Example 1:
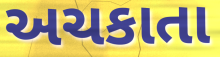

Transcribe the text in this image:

અચકાતા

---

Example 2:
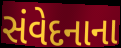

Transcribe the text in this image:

સંવેદનાના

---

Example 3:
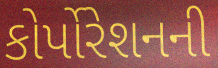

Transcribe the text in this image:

કોર્પોરેશનની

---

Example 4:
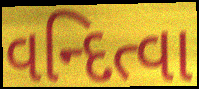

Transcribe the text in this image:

વન્દિત્વા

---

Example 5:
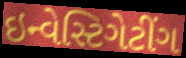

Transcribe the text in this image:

ઇન્વેસ્ટિગેટીંગ